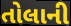
તોલાની